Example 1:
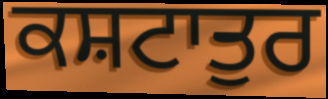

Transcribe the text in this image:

ਕਸ਼ਟਾਤੁਰ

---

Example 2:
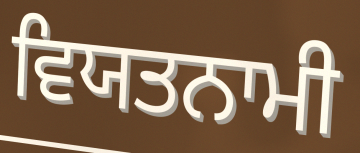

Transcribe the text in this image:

ਵਿਯਤਨਾਮੀ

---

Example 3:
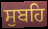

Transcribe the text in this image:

ਸੁਬਹਿ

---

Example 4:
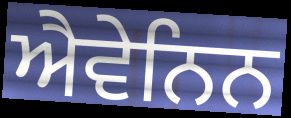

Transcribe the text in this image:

ਐਵੇਨਿਨ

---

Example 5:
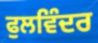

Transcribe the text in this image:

ਫੁਲਵਿੰਦਰ